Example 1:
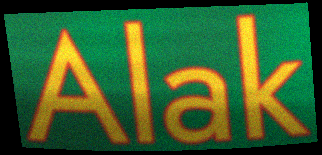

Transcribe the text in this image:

Alak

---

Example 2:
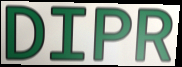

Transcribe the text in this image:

DIPR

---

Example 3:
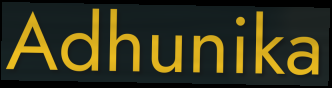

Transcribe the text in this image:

Adhunika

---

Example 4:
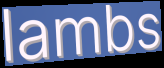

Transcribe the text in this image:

lambs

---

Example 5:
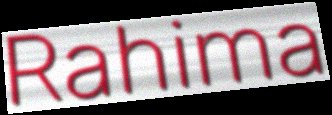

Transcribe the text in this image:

Rahima